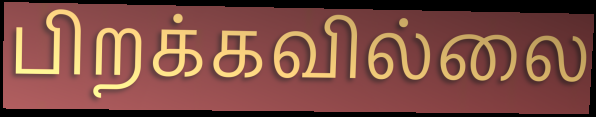
பிறக்கவில்லை